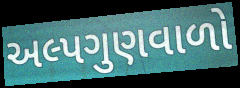
અલ્પગુણવાળો